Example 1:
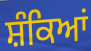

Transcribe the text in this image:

ਸ਼ੰਕਿਆਂ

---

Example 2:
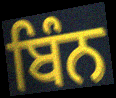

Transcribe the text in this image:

ਬਿੰਨ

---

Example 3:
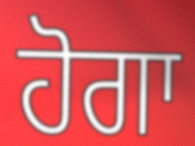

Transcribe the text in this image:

ਹੋਗਾ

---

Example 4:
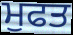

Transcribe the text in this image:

ਮੁਫਤ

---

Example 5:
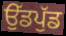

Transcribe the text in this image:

ਉੱਡਪੁੱਡ